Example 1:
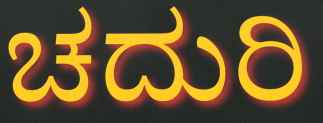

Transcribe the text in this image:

ಚದುರಿ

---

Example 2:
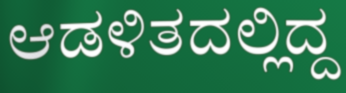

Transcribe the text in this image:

ಆಡಳಿತದಲ್ಲಿದ್ದ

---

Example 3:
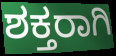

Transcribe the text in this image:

ಶಕ್ತರಾಗಿ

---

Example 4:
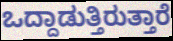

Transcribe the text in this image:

ಒದ್ದಾಡುತ್ತಿರುತ್ತಾರೆ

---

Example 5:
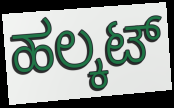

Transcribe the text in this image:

ಹಲ್ಕಟ್